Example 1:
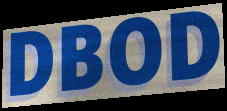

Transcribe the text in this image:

DBOD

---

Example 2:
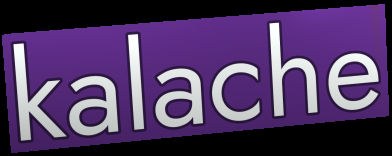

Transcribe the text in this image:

kalache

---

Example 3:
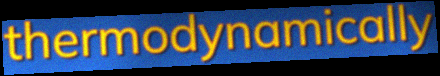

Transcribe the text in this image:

thermodynamically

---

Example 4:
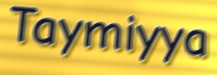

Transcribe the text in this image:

Taymiyya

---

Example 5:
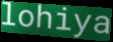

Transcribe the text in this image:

lohiya